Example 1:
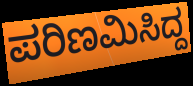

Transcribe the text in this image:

ಪರಿಣಮಿಸಿದ್ದ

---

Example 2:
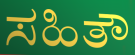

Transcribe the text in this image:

ಸಹಿತೌ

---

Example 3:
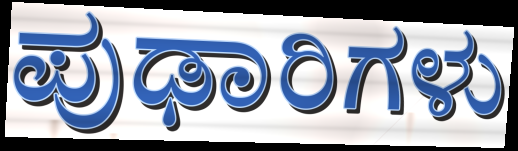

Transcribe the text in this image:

ಪುಢಾರಿಗಳು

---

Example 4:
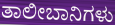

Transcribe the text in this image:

ತಾಲೀಬಾನಿಗಳು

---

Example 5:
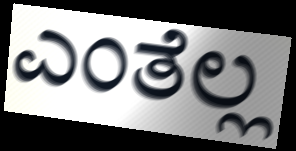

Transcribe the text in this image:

ಎಂತೆಲ್ಲ